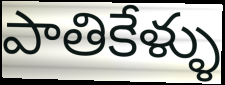
పాతికేళ్ళు